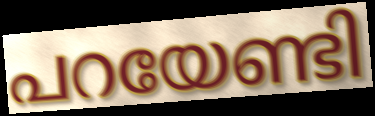
പറയേണ്ടി